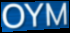
OYM